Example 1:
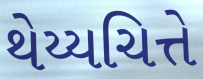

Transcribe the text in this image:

થેય્યચિત્તે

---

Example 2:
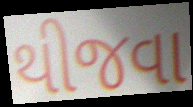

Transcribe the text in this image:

થીજવા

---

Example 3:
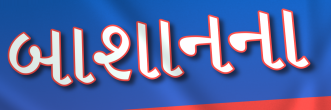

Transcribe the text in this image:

બાશાનના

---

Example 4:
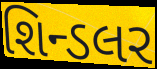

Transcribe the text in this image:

શિન્ડલર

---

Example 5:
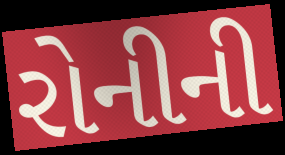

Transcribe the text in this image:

રોનીની